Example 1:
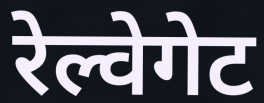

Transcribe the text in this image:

रेल्वेगेट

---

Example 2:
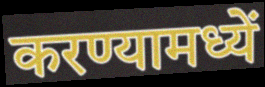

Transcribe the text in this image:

करण्यामध्यें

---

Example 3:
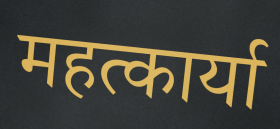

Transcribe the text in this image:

महत्कार्या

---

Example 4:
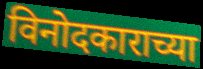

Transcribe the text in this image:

विनोदकाराच्या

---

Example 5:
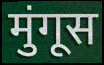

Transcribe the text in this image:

मुंगूस